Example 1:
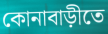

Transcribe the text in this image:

কোনাবাড়ীতে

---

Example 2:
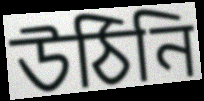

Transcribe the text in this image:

উঠিনি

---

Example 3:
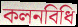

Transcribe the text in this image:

কলনবিধি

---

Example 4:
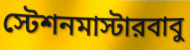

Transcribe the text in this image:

স্টেশনমাস্টারবাবু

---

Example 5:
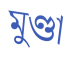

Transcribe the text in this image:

মুণ্ডা